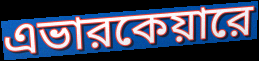
এভারকেয়ারে